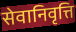
सेवानिवृत्ति